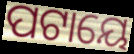
ପଟାୟେ